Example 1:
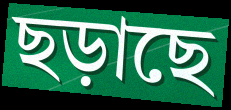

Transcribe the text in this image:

ছড়াছে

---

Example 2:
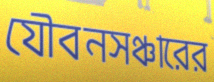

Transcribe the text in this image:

যৌবনসঞ্চারের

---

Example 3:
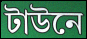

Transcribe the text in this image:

টাউনে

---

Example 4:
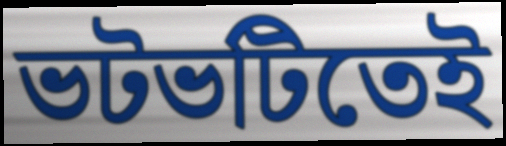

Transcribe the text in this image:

ভটভটিতেই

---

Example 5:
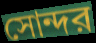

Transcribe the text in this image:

সোন্দর